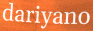
dariyano